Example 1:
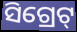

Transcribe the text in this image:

ସିଗ୍ରେଟ୍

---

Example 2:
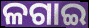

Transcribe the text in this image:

ଳଗାଇ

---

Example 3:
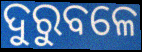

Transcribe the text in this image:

ଦୁରୁବଳେ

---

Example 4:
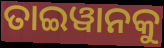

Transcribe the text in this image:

ତାଇୱାନକୁ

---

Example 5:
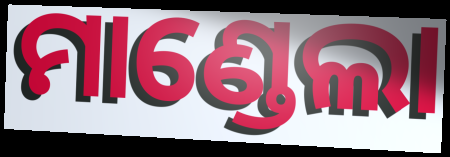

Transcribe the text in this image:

ମାଣ୍ଡେଲା